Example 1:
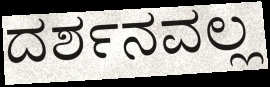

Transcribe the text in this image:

ದರ್ಶನವಲ್ಲ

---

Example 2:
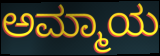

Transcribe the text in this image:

ಅಮ್ಮಾಯ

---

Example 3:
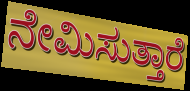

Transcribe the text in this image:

ನೇಮಿಸುತ್ತಾರೆ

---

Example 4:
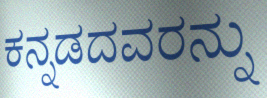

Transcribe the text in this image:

ಕನ್ನಡದವರನ್ನು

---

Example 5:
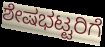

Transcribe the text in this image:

ಶೇಷಭಟ್ಟರಿಗೆ